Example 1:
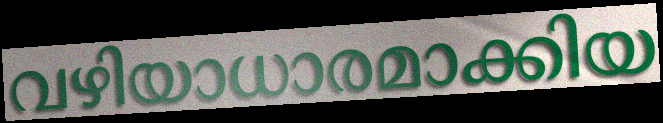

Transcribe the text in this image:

വഴിയാധാരമാക്കിയ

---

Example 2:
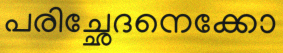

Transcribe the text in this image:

പരിച്ഛേദനെക്കോ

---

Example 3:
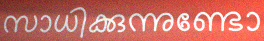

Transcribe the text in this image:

സാധിക്കുന്നുണ്ടോ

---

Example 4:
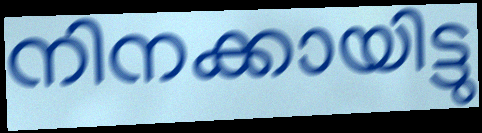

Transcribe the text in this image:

നിനക്കായിട്ടു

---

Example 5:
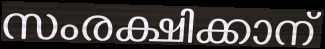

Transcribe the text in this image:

സംരക്ഷിക്കാന്